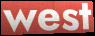
west